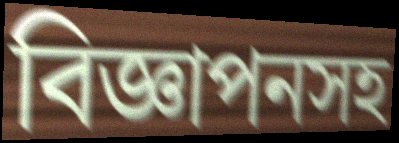
বিজ্ঞাপনসহ